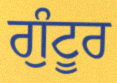
ਗੁੰਟੂਰ